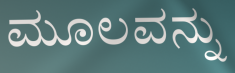
ಮೂಲವನ್ನು